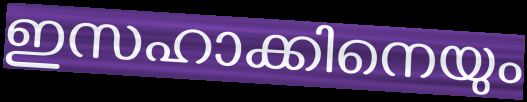
ഇസഹാക്കിനെയും